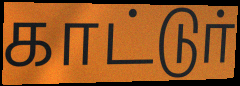
காட்டுர்